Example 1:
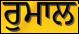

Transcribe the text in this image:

ਰੁਮਾਲ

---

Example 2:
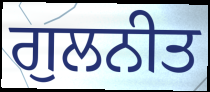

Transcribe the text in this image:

ਗੁਲਨੀਤ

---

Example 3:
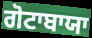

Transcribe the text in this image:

ਗੋਟਾਬਾਯਾ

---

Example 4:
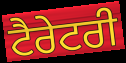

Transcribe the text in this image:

ਟੈਰੇਟਰੀ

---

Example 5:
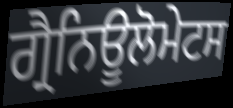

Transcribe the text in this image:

ਗ੍ਰੈਨਿਊਲੋਮੇਟਸ